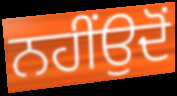
ਨਹੀਂਉਦੋਂ